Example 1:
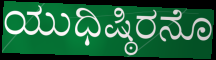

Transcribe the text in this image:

ಯುಧಿಷ್ಠಿರನೊ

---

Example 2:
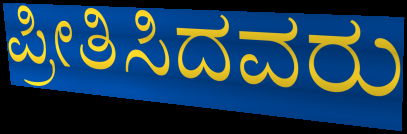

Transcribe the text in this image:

ಪ್ರೀತಿಸಿದವರು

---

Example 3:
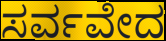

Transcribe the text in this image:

ಸರ್ವವೇದ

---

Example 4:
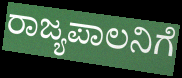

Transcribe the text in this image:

ರಾಜ್ಯಪಾಲನಿಗೆ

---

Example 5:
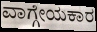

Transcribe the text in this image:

ವಾಗ್ಗೇಯಕಾರ